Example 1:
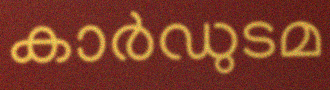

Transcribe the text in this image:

കാർഡുടമ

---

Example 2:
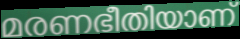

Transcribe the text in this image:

മരണഭീതിയാണ്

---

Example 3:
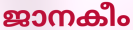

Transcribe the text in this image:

ജാനകീം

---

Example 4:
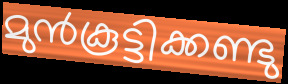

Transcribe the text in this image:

മുൻകൂട്ടിക്കണ്ടു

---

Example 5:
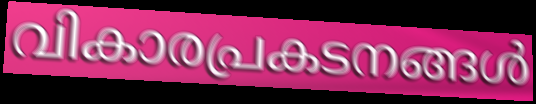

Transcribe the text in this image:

വികാരപ്രകടനങ്ങൾ